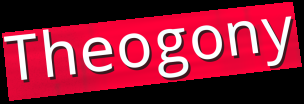
Theogony